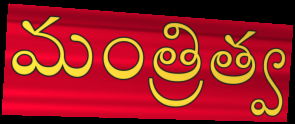
మంత్రిత్వ